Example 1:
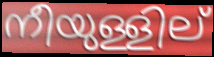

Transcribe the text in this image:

നീയുള്ളില്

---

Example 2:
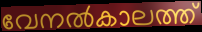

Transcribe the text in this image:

വേനൽകാലത്ത്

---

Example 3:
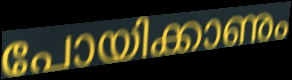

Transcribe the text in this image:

പോയിക്കാണും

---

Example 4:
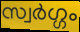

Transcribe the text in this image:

സ്വർഗ്ഗം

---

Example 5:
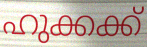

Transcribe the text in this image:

ഹുക്കക്ക്